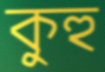
কুহু